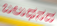
ಬಲುಧನದ